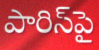
పారిస్‌పై